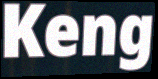
Keng